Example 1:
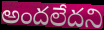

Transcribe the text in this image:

అందలేదని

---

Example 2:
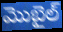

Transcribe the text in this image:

మొబైల్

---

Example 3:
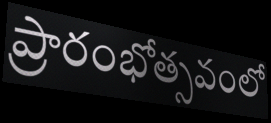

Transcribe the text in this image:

ప్రారంభోత్సవంలో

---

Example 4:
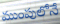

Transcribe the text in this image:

ముంపులోనే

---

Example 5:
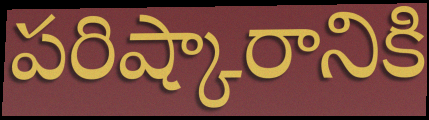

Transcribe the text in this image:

పరిష్కారానికి